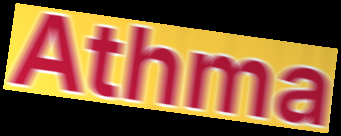
Athma